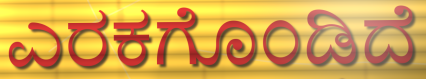
ಎರಕಗೊಂಡಿದೆ